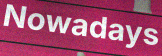
Nowadays